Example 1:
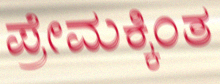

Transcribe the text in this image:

ಪ್ರೇಮಕ್ಕಿಂತ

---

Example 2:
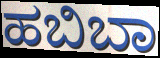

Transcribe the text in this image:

ಹಬಿಬಾ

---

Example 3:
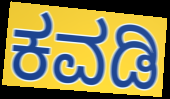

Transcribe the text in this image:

ಕವಡಿ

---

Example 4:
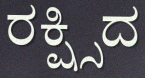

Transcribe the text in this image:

ರಕ್ಷ್ಸಿದ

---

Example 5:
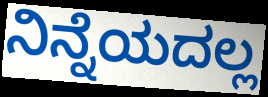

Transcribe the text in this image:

ನಿನ್ನೆಯದಲ್ಲ